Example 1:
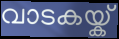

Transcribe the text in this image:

വാടകയ്ക്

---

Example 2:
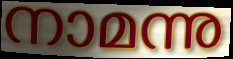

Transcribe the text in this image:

നാമന്നു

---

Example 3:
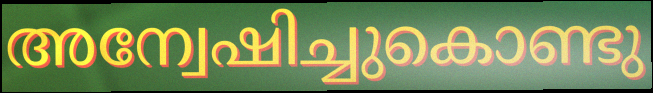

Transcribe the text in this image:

അന്വേഷിച്ചുകൊണ്ടു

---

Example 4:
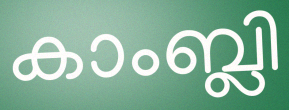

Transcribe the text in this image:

കാംബ്ലി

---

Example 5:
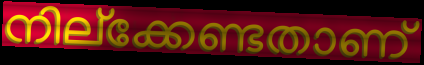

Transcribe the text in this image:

നില്ക്കേണ്ടതാണ്